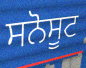
ਸਨੋਸੂਟ